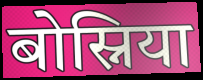
बोस्निया